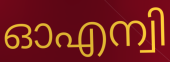
ഓഎന്വി